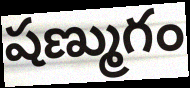
షణ్ముగం